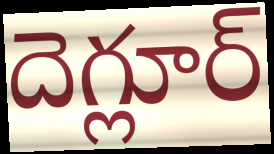
దెగ్లూర్